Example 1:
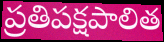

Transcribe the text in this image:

ప్రతిపక్షపాలిత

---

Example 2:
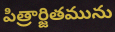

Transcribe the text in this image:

పిత్రార్జితమును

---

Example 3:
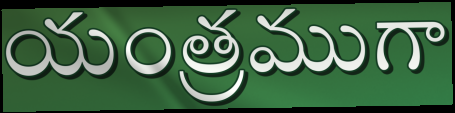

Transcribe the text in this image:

యంత్రముగా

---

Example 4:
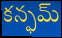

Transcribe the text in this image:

కన్ఫమ్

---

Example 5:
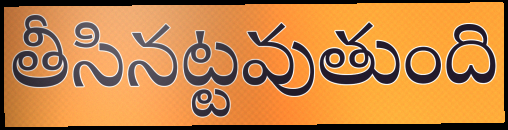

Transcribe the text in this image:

తీసినట్టవుతుంది